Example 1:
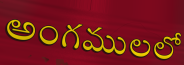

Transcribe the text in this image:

అంగములలో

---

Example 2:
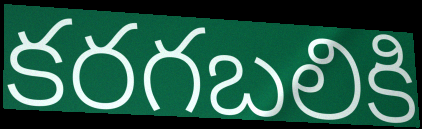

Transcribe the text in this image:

కరగబలికి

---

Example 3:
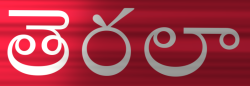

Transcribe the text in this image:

తెరలా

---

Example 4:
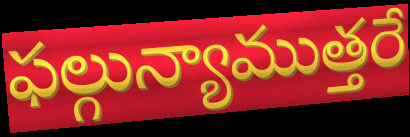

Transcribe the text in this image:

ఫల్గున్యాముత్తరే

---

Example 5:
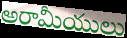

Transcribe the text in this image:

అరామీయులు